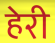
हेरी